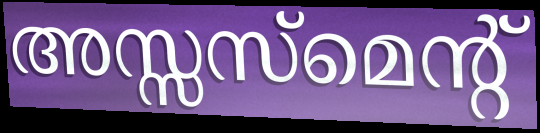
അസ്സസ്മെന്റ്